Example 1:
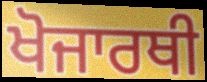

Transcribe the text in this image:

ਖੋਜਾਰਥੀ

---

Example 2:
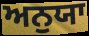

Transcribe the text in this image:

ਅਨੁਯਾ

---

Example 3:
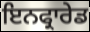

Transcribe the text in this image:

ਇਨਫ੍ਰਾਰੇਡ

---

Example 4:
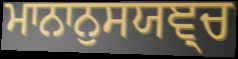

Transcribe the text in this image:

ਮਾਨਾਨੁਸਯਞ੍ਚ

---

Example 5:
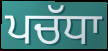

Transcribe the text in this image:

ਪਚੱਧਾ